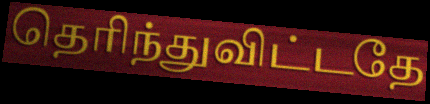
தெரிந்துவிட்டதே